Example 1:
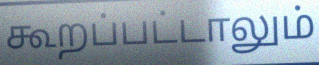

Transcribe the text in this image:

கூறப்பட்டாலும்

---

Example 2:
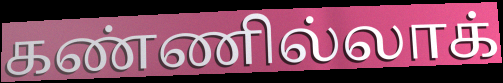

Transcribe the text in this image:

கண்ணில்லாக்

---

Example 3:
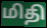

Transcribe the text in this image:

மிதி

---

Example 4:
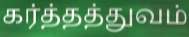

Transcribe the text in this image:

கர்த்தத்துவம்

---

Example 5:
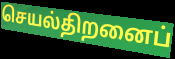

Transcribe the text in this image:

செயல்திறனைப்